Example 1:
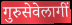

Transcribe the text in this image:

गुरुसेवेलागीं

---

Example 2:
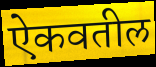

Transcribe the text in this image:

ऐकवतील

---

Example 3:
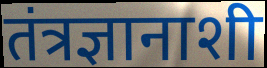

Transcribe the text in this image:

तंत्रज्ञानाशी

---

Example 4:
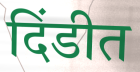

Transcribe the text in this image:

दिंडीत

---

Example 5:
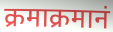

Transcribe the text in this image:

क्रमाक्रमानं